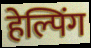
हेल्पिंग